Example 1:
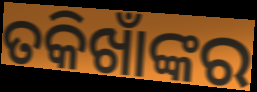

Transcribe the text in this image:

ତକିଖାଁଙ୍କର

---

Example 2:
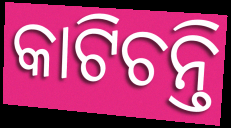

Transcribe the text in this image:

କାଟିଚନ୍ତି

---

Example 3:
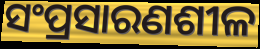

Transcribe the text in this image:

ସଂପ୍ରସାରଣଶୀଳ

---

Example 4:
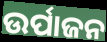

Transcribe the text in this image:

ଉର୍ପାଜନ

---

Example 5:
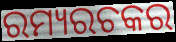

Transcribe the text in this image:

ରମ୍ୟରଚକର